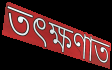
তৎক্ষণাত